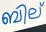
ബില്